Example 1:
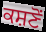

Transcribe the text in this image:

ਕਸ਼ਣੋਂ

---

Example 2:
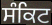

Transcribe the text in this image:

ਸੰਕਿਟ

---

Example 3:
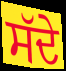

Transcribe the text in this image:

ਸੱਦੇ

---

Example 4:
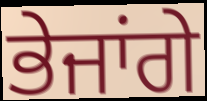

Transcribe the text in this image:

ਭੇਜਾਂਗੇ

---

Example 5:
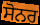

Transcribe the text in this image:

ਸੋਨਰ